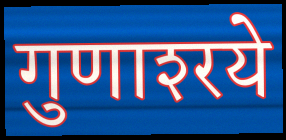
गुणाश्रये